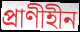
প্রাণীহীন